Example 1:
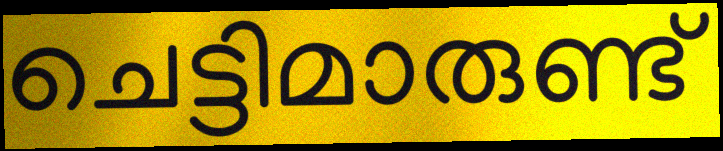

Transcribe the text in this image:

ചെട്ടിമാരുണ്ട്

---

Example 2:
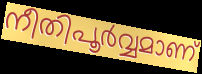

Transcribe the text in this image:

നീതിപൂർവ്വമാണ്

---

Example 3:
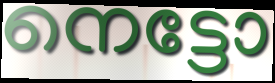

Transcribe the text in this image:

നെട്ടോ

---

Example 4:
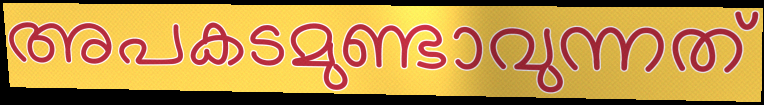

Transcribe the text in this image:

അപകടമുണ്ടാവുന്നത്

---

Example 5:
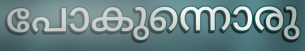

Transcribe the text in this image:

പോകുന്നൊരു